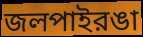
জলপাইরঙা